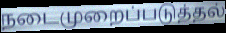
நடைமுறைப்படுத்தல்